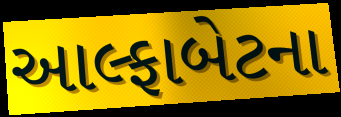
આલ્ફાબેટના